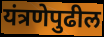
यंत्रणेपुढील